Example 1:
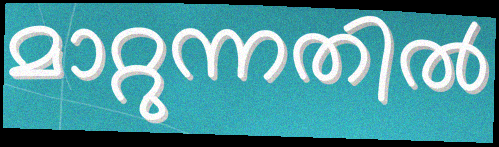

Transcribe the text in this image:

മാറ്റുന്നതിൽ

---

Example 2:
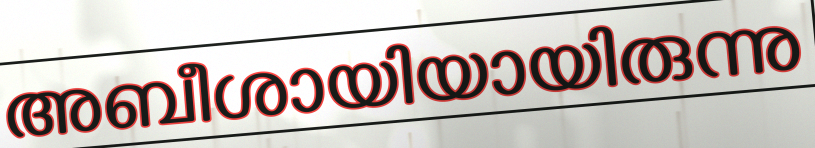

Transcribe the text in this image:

അബീശായിയായിരുന്നു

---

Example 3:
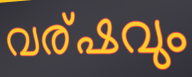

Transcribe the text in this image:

വര്ഷവും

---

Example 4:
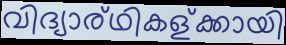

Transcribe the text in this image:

വിദ്യാര്ഥികള്ക്കായി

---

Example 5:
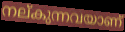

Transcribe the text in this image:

നല്കുന്നവയാണ്